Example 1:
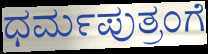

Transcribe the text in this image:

ಧರ್ಮಪುತ್ರಂಗೆ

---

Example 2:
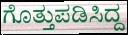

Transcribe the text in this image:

ಗೊತ್ತುಪಡಿಸಿದ್ದ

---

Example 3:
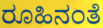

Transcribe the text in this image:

ರೂಹಿನಂತೆ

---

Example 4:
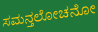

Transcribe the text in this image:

ಸಮನ್ತಲೋಚನೋ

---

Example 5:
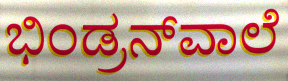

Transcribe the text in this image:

ಭಿಂಡ್ರನ್‌ವಾಲೆ